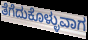
ತೆಗೆದುಕೊಳ್ಳುವಾಗ